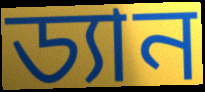
ড্যান